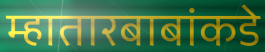
म्हातारबाबांकडे